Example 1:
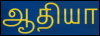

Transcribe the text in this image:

ஆதியா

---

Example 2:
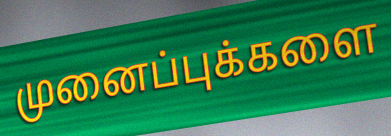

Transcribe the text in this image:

முனைப்புக்களை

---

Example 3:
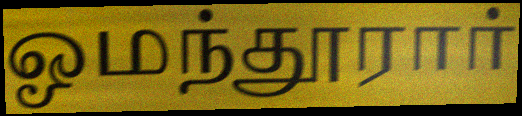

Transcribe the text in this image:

ஓமந்தூரார்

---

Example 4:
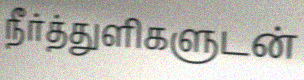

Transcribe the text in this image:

நீர்த்துளிகளுடன்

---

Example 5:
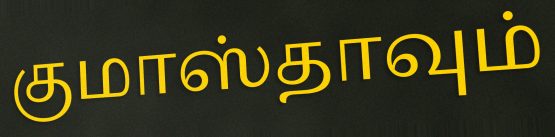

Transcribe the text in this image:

குமாஸ்தாவும்